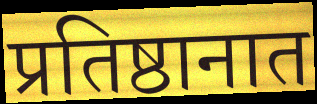
प्रतिष्ठानात